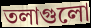
তলাগুলো